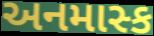
અનમાસ્ક